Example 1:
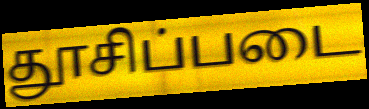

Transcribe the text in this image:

தூசிப்படை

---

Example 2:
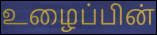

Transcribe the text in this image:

உழைப்பின்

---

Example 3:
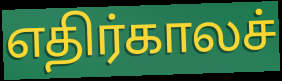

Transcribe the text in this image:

எதிர்காலச்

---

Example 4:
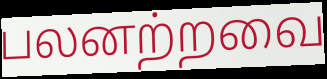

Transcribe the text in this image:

பலனற்றவை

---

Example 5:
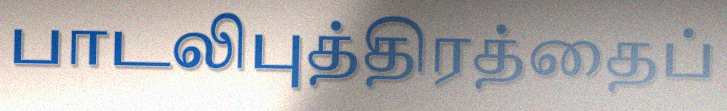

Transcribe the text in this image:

பாடலிபுத்திரத்தைப்